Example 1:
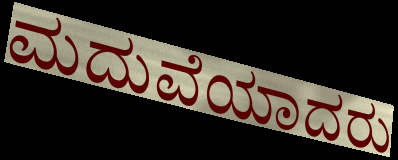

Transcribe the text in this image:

ಮದುವೆಯಾದರು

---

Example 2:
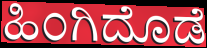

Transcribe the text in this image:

ಹಿಂಗಿದೊಡೆ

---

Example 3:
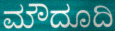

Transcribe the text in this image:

ಮೌದೂದಿ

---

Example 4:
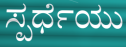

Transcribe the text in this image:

ಸ್ಪರ್ಧೆಯು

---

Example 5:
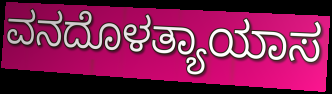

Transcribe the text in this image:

ವನದೊಳತ್ಯಾಯಾಸ